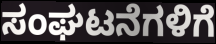
ಸಂಘಟನೆಗಳಿಗೆ